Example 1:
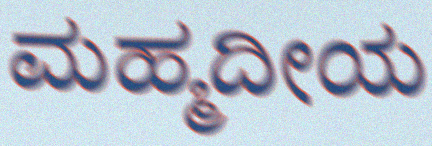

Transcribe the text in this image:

ಮಹ್ಮದೀಯ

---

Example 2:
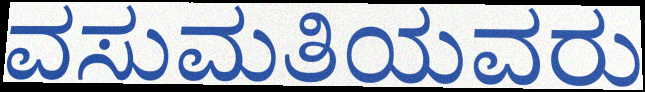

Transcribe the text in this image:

ವಸುಮತಿಯವರು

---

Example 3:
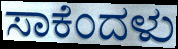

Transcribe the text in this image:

ಸಾಕೆಂದಳು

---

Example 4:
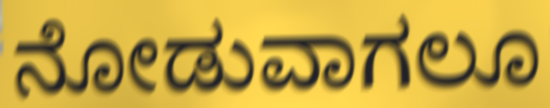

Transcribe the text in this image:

ನೋಡುವಾಗಲೂ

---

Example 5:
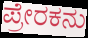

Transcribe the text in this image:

ಪ್ರೇರಕನು